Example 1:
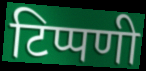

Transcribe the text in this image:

टिप्पणी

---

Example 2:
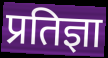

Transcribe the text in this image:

प्रतिज्ञा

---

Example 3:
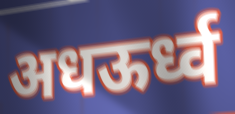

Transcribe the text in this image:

अधऊर्ध्व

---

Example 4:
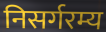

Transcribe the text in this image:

निसर्गरम्य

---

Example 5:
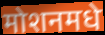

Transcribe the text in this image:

मोशनमधे